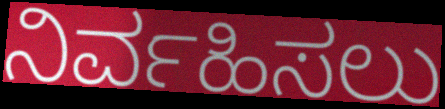
ನಿರ್ವಹಿಸಲು